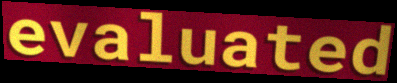
evaluated